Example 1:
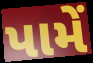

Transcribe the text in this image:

પામેં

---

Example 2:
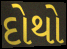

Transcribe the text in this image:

દોથો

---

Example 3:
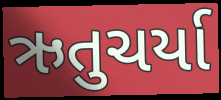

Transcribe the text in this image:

ઋતુચર્યા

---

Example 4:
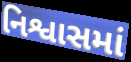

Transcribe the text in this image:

નિશ્વાસમાં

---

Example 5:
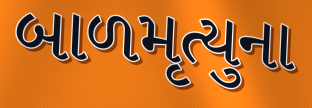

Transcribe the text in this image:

બાળમૃત્યુના